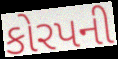
કોરપની